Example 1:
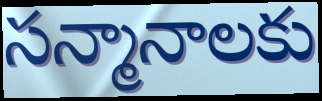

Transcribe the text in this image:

సన్మానాలకు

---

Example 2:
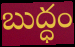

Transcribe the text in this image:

బుద్ధం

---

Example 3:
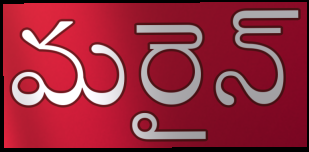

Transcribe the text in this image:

మరైన్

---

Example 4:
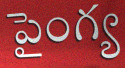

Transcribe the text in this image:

పైంగ్య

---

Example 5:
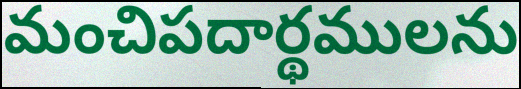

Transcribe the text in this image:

మంచిపదార్థములను